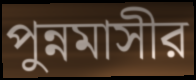
পুন্নমাসীর